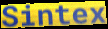
Sintex